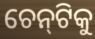
ଚେନ୍‌ଟିକୁ